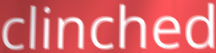
clinched